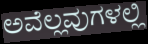
ಅವೆಲ್ಲವುಗಳಲ್ಲಿ